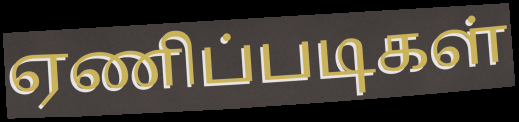
ஏணிப்படிகள்